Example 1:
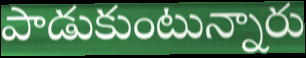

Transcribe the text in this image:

పాడుకుంటున్నారు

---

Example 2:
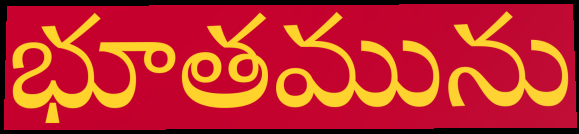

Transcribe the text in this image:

భూతమును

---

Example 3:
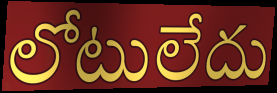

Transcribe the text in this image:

లోటులేదు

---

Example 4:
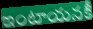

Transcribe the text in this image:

ఇంటాయనకీ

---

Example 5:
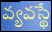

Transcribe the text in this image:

వ్యవస్థే